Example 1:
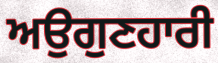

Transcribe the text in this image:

ਅਉਗੁਣਹਾਰੀ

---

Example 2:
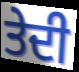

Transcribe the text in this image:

ਤੇਦੀ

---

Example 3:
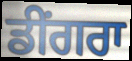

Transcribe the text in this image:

ਡੀਂਗਰਾ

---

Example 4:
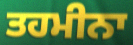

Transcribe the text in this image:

ਤਹਮੀਨਾ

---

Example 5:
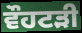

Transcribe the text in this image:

ਵੌਹਟੜੀ